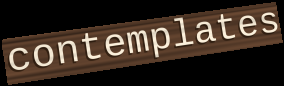
contemplates